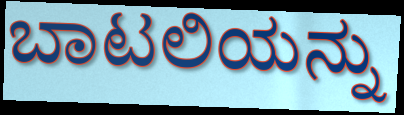
ಬಾಟಲಿಯನ್ನು